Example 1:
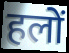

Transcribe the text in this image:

हलों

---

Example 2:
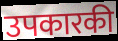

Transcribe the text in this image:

उपकारकी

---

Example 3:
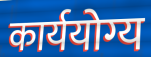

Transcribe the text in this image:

कार्ययोग्य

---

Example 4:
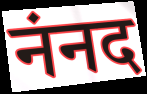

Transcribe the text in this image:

नंनद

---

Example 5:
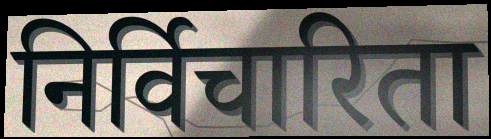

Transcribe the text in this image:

निर्विचारिता